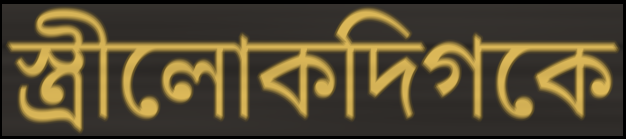
স্ত্রীলোকদিগকে